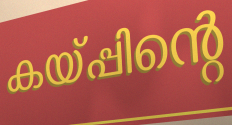
കയ്പ്പിന്റെ